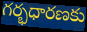
గర్భధారణకు